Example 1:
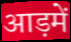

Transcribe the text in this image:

आड़में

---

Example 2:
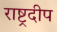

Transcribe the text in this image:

राष्ट्रदीप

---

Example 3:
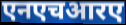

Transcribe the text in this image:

एनएचआरए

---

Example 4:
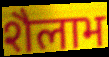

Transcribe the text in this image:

शैलाभ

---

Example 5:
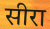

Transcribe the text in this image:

सीरा